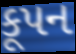
કૂપન